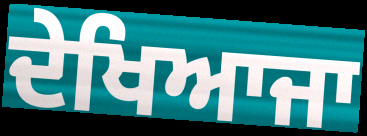
ਦੇਖਿਆਜਾ